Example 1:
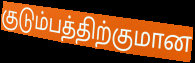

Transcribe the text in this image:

குடும்பத்திற்குமான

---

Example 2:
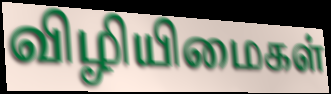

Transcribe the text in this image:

விழியிமைகள்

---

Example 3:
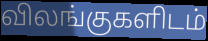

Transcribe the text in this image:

விலங்குகளிடம்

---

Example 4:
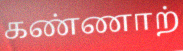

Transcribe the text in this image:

கண்ணாற்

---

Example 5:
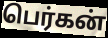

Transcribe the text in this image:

பெர்கன்